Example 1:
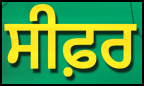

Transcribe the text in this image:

ਸੀਫ਼ਰ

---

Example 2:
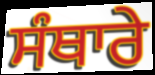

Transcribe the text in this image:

ਸੰਥਾਰੇ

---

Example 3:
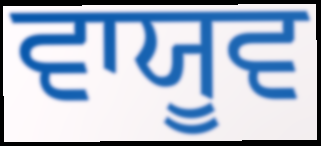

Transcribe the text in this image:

ਵਾਯੂਵ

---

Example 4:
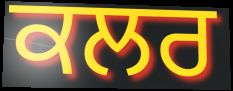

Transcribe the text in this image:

ਕਲਰ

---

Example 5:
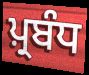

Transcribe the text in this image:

ਪ਼੍ਰਬੰਧ